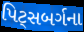
પિટ્સબર્ગના